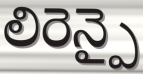
లిరెన్పై